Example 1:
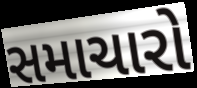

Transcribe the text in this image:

સમાચારો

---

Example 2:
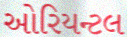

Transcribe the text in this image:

ઓરિયન્ટલ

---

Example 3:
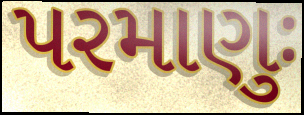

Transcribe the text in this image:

પરમાણુઃ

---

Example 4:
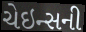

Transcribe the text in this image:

ચેઇન્સની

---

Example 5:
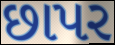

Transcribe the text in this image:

છાપર